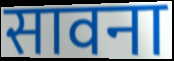
सावना